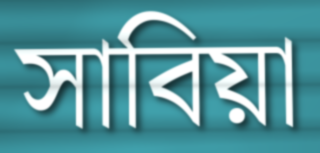
সাবিয়া